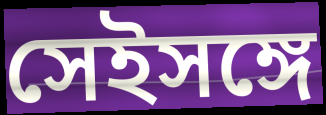
সেইসঙ্গে